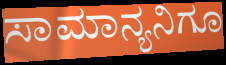
ಸಾಮಾನ್ಯನಿಗೂ